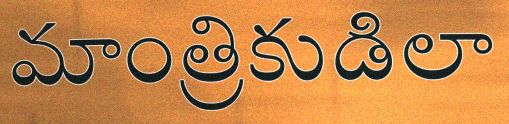
మాంత్రికుడిలా